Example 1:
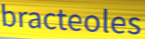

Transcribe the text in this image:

bracteoles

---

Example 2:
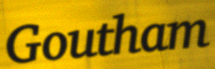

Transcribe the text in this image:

Goutham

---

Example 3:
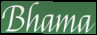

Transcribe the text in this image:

Bhama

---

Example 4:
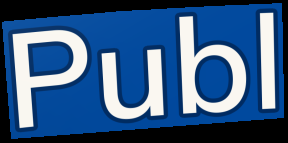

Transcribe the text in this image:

Publ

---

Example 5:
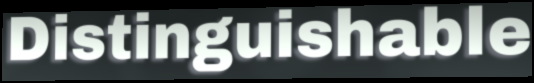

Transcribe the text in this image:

Distinguishable